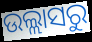
ଉଲ୍ଲାସରୁ